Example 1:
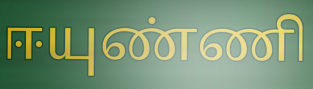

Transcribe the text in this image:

ஈயுண்ணி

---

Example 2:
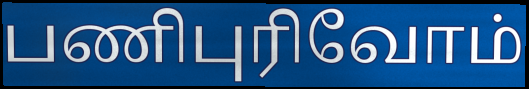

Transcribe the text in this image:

பணிபுரிவோம்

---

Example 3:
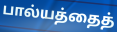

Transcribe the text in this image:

பால்யத்தைத்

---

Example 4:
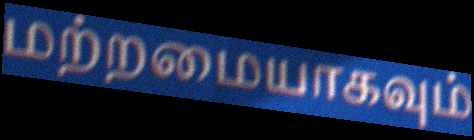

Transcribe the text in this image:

மற்றமையாகவும்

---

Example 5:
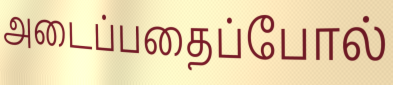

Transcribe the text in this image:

அடைப்பதைப்போல்